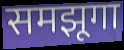
समझूगा